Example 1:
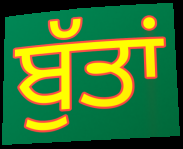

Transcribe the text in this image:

ਬੁੱਤਾਂ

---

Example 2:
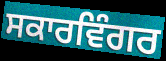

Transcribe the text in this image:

ਸਕਾਰਵਿੰਗਰ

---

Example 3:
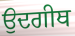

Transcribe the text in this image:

ਉਦਗੀਥ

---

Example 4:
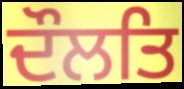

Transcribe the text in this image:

ਦੌਲਤਿ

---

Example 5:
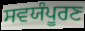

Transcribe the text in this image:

ਸਵਯੰਪੂਰਣ